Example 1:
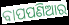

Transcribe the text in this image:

ବାପପଣିଆର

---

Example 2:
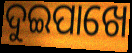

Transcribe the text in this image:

ଦୁଇପାଖେ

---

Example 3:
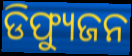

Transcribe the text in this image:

ଡିଫ୍ୟୁଜନ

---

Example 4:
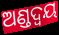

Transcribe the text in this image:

ଅଣ୍ଡଦ୍ୱୟ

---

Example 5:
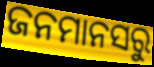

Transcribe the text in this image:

ଜନମାନସରୁ